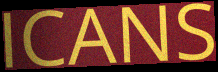
ICANS